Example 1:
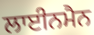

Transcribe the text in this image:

ਲਾਈਨਮੈਨ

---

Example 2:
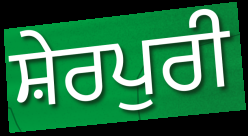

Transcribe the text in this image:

ਸ਼ੇਰਪੁਰੀ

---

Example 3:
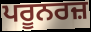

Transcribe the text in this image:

ਪਰੂਨਰਜ਼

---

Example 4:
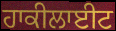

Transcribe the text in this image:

ਹਾਕੀਲਾਈਟ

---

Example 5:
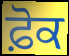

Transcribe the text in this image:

ਫ਼ੋਕ